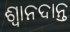
ଶ୍ଵାନଦାନ୍ତ